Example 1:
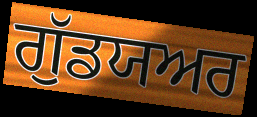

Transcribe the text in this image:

ਗੁੱਡਯਅਰ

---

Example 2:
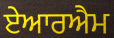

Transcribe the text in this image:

ਏਆਰਐਮ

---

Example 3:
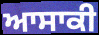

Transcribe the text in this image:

ਆਸਾਕੀ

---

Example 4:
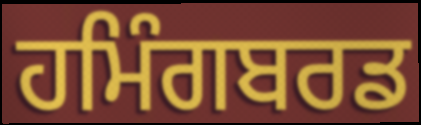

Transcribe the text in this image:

ਹਮਿੰਗਬਰਡ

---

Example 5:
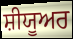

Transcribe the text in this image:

ਸ਼ੀਯੂਅਰ